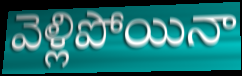
వెళ్లిపోయినా